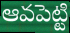
ఆవపెట్టి